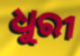
ଧୁରୀ